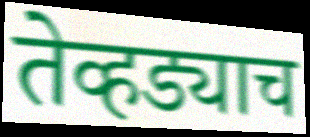
तेव्हड्याच